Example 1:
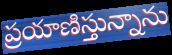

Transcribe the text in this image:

ప్రయాణిస్తున్నాను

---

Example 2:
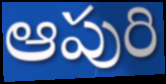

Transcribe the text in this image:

ఆపురి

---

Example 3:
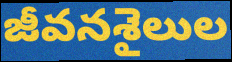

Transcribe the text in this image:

జీవనశైలుల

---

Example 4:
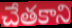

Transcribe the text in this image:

చేతకాని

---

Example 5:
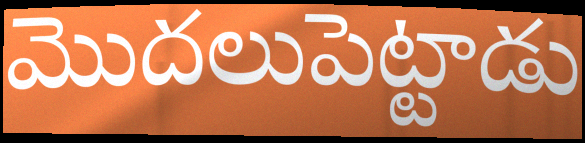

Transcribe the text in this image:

మొదలుపెట్టాడు